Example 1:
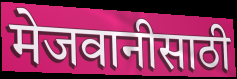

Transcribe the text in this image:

मेजवानीसाठी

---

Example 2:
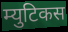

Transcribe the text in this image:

म्युटिकस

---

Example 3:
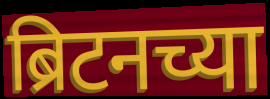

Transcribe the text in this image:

ब्रिटनच्या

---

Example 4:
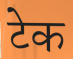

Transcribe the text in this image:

टेक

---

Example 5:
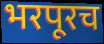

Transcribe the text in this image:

भरपूरच